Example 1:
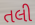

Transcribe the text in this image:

તલી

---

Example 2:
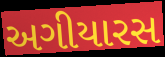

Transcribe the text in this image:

અગીયારસ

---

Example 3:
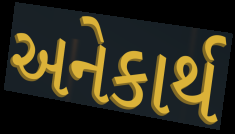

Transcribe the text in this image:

અનેકાર્થ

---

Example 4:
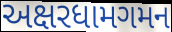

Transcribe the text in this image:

અક્ષરધામગમન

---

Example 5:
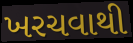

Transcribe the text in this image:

ખરચવાથી